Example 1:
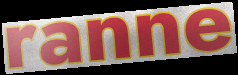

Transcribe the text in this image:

ranne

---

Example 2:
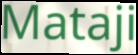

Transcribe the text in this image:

Mataji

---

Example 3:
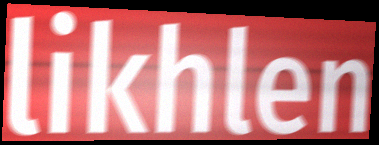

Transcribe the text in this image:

likhlen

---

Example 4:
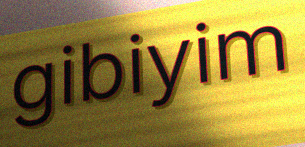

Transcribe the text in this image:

gibiyim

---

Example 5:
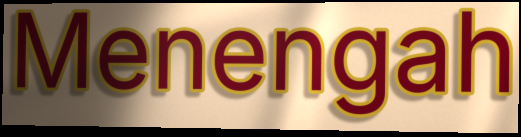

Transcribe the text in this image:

Menengah